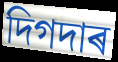
দিগদাৰ